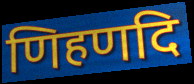
णिहणदि